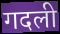
गदली